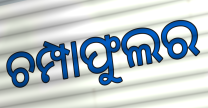
ଚମ୍ପାଫୁଲର